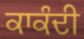
ਕਾਕੰਦੀ